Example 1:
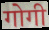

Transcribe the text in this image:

गोगी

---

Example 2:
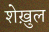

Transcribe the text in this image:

शेख़ुल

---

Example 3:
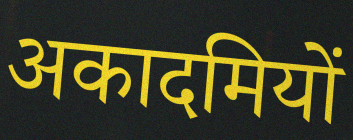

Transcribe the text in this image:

अकादमियों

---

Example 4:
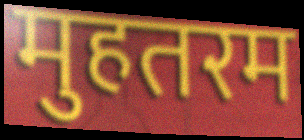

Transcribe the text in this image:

मुहतरम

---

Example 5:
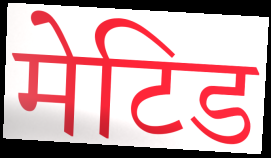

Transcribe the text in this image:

मेटिड